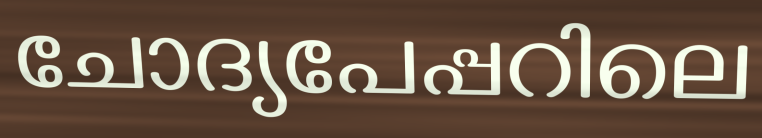
ചോദ്യപേപ്പറിലെ